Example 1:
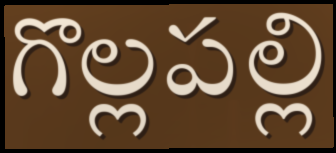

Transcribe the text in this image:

గొల్లపల్లి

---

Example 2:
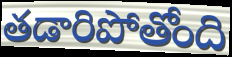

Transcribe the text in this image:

తడారిపోతోంది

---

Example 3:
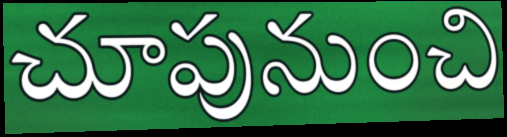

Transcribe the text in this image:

చూపునుంచి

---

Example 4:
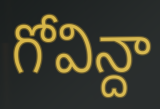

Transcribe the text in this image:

గోవిన్దా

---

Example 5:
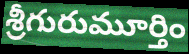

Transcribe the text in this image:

శ్రీగురుమూర్తిం